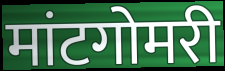
मांटगोमरी